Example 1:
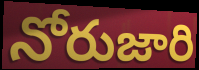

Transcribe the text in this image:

నోరుజారి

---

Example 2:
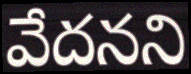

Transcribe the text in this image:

వేదనని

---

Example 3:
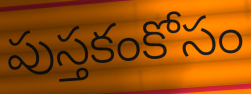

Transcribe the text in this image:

పుస్తకంకోసం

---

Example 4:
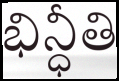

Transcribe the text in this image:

భిన్ధీతి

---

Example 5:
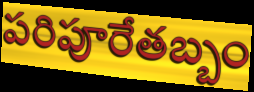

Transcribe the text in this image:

పరిపూరేతబ్బం